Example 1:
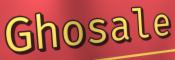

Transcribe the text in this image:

Ghosale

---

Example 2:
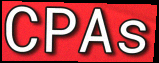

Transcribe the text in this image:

CPAs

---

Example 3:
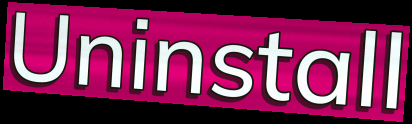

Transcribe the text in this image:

Uninstall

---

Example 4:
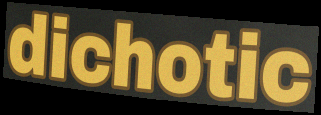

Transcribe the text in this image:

dichotic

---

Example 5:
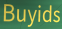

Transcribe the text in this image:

Buyids